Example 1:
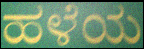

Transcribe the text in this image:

ಹಳೆಯ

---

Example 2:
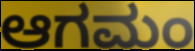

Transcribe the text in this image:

ಆಗಮಂ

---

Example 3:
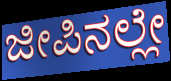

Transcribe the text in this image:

ಜೀಪಿನಲ್ಲೇ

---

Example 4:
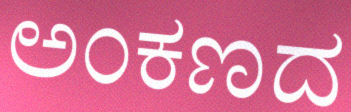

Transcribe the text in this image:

ಅಂಕಣದ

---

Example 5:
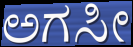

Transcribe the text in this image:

ಅಗಸೀ